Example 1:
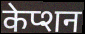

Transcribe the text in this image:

केप्शन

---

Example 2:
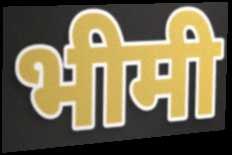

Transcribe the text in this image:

भीमी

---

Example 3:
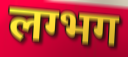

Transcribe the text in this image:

लग्भग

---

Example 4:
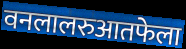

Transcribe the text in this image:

वनलालरुआतफेला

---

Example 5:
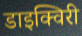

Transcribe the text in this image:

डाइक्विरी